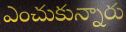
ఎంచుకున్నారు